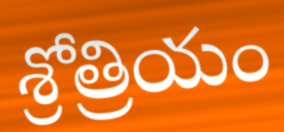
శ్రోత్రియం